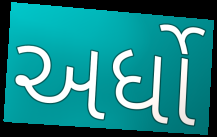
અર્ધો